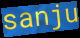
sanju